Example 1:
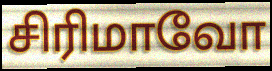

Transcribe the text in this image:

சிரிமாவோ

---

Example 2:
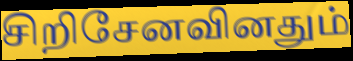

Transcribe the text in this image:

சிறிசேனவினதும்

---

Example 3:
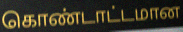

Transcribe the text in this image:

கொண்டாட்டமான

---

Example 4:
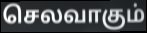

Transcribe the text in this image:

செலவாகும்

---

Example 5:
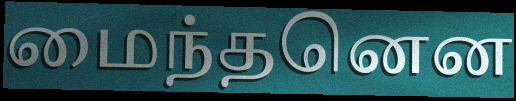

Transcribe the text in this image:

மைந்தனென